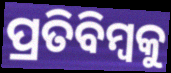
ପ୍ରତିବିମ୍ୱକୁ